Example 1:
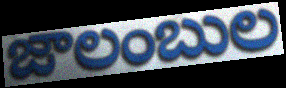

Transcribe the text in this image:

జాలంబుల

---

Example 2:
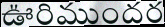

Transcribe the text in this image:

ఊరిముందర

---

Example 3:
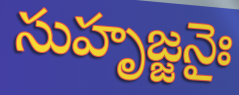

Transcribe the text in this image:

సుహృజ్జనైః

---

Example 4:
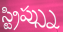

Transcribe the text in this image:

స్ట్రిప్స్ను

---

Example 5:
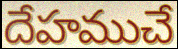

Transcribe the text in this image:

దేహముచే